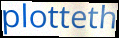
plotteth